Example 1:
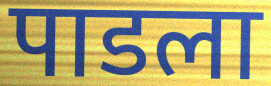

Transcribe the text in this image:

पाडला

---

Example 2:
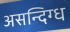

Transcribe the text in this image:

असन्दिग्ध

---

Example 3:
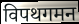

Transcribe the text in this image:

विपथगमन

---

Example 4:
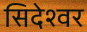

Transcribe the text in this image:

सिदेश्वर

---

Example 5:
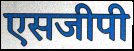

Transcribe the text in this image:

एसजीपी